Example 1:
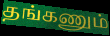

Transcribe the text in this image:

தங்கணும்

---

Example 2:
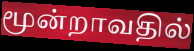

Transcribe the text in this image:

மூன்றாவதில்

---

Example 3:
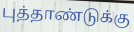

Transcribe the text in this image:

புத்தாண்டுக்கு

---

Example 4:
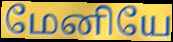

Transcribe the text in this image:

மேனியே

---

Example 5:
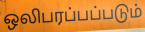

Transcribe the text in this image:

ஒலிபரப்பப்படும்